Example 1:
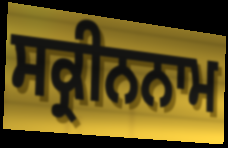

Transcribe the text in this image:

ਸਕ੍ਰੀਨਨਾਮ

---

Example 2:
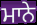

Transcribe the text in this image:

ਮਾਨੇ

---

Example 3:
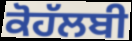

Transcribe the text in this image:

ਕੋਹੱਲਬੀ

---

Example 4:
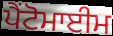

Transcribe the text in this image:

ਪੈਂਟੋਮਾਈਮ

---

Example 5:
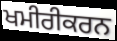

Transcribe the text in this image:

ਖਮੀਰੀਕਰਨ